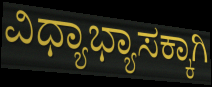
ವಿಧ್ಯಾಭ್ಯಾಸಕ್ಕಾಗಿ